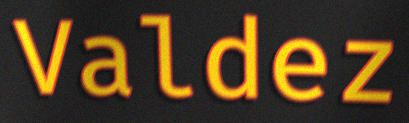
Valdez